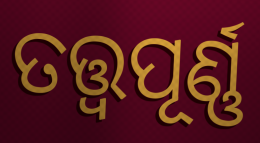
ତତ୍ତ୍ୱପୂର୍ଣ୍ଣ